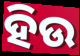
ହିଉ